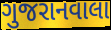
ગુજરાનવાલા